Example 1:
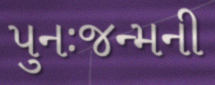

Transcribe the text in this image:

પુનઃજન્મની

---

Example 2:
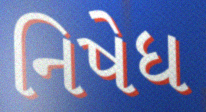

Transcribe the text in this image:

નિષેધ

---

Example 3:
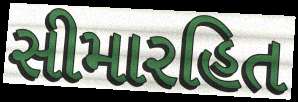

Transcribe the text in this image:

સીમારહિત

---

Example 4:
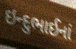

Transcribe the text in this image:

ઇન્દુભાઈનાં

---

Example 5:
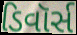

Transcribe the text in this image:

ડિવૉર્સ